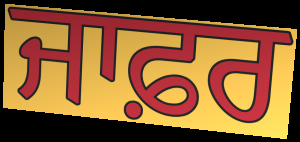
ਜਾਫ਼ਰ